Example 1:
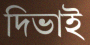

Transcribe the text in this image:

দিভাই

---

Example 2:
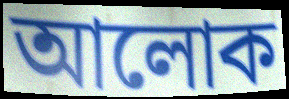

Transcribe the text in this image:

আলোক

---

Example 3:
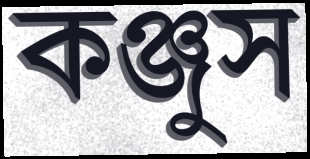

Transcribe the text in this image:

কঞ্জুস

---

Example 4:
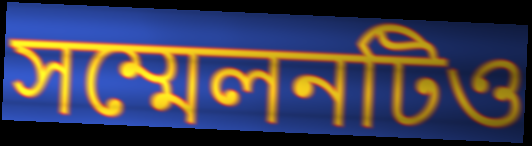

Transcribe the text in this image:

সম্মেলনটিও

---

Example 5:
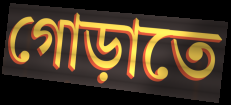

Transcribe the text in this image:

গোড়াতে